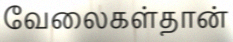
வேலைகள்தான்